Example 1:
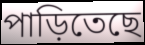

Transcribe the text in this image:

পাড়িতেছে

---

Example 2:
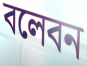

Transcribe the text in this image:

বলেবন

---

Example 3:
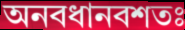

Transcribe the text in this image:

অনবধানবশতঃ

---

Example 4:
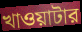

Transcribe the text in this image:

খাওয়াটার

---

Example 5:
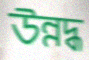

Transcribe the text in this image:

উন্নদ্ধ